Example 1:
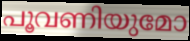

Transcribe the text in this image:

പൂവണിയുമോ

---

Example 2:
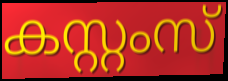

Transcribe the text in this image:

കസ്റ്റംസ്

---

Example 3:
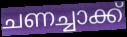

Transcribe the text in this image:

ചണച്ചാക്ക്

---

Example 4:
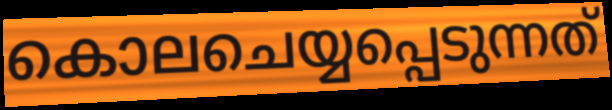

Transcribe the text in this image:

കൊലചെയ്യപ്പെടുന്നത്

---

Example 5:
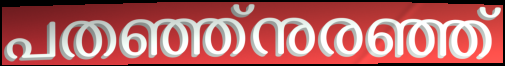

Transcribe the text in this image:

പതഞ്ഞ്നുരഞ്ഞ്